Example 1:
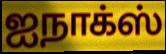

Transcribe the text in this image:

ஐநாக்ஸ்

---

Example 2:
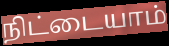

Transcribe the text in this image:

நிட்டையாம்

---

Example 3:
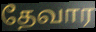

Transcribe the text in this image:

தேவார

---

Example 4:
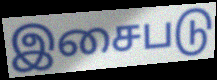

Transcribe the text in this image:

இசைபடு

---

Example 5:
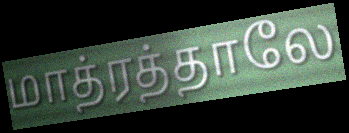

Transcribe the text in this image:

மாத்ரத்தாலே